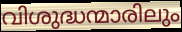
വിശുദ്ധന്മാരിലും